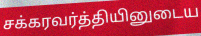
சக்கரவர்த்தியினுடைய